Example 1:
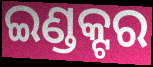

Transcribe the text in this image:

ଇଣ୍ଡକ୍ଟର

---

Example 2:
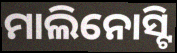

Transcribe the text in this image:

ମାଲିନୋସ୍ଟି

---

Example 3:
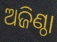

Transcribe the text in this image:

ଅଜିଣ୍ଠା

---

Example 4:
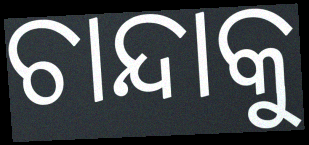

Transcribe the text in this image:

ଚାନ୍ଦାକୁ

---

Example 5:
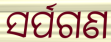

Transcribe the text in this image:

ସର୍ପଗଣ